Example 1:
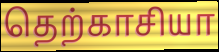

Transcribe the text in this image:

தெற்காசியா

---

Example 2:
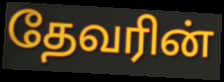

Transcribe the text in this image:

தேவரின்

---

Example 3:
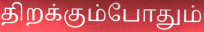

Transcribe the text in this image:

திறக்கும்போதும்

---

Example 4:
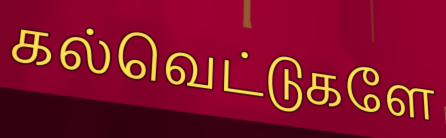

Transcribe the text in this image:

கல்வெட்டுகளே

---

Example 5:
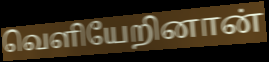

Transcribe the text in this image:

வெளியேறினான்